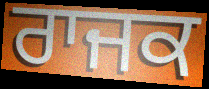
ਰਾਜਕ